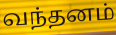
வந்தனம்